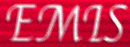
EMIS